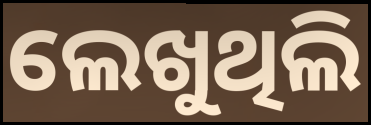
ଲେଖୁଥିଲି